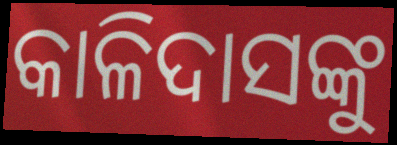
କାଳିଦାସଙ୍କୁ